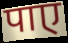
पाए